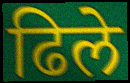
ढिले